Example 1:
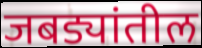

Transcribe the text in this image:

जबड्यांतील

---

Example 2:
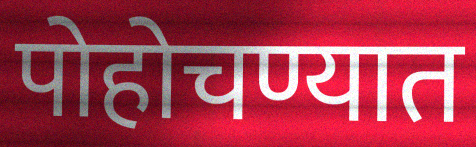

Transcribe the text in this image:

पोहोचण्यात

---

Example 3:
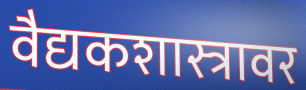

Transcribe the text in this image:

वैद्यकशास्त्रावर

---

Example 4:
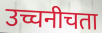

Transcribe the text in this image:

उच्चनीचता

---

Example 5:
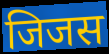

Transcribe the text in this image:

जिजस